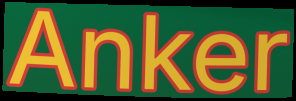
Anker